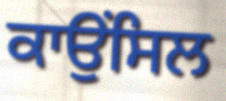
ਕਾਉਂਸਿਲ